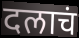
दलाचं